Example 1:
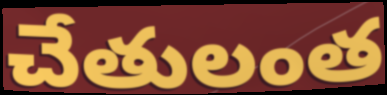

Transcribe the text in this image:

చేతులంత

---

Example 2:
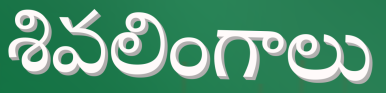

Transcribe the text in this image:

శివలింగాలు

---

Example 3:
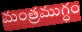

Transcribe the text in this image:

మంత్రముగ్ధం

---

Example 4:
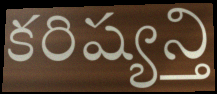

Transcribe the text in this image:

కరిష్యన్తి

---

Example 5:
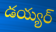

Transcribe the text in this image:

డయ్యర్